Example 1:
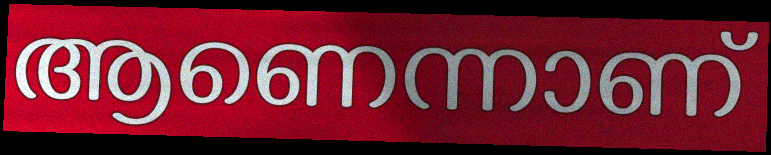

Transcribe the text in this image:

ആണെന്നാണ്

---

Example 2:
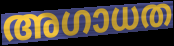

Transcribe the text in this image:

അഗാധത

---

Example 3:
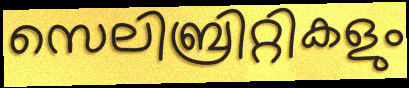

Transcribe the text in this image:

സെലിബ്രിറ്റികളും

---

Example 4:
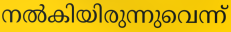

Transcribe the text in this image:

നൽകിയിരുന്നുവെന്ന്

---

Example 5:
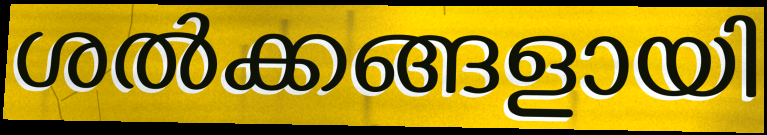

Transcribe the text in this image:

ശൽക്കങ്ങളായി